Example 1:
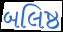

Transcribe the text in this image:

બલિષ્ઠ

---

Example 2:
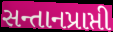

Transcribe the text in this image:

સન્તાનપ્રાપ્તી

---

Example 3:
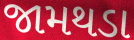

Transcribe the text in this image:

જામથડા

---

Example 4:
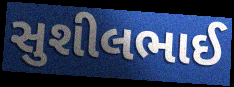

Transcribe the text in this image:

સુશીલભાઈ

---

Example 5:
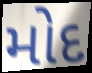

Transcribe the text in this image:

મોદ